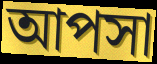
আপসা